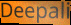
Deepali